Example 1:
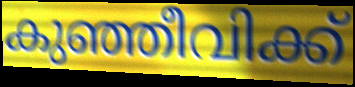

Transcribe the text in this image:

കുഞ്ഞീവിക്ക്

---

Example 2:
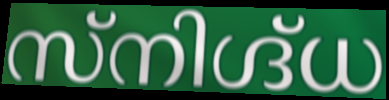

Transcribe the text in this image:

സ്നിഗ്ദ്ധ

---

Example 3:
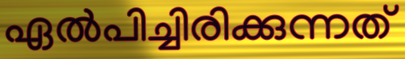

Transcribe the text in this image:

ഏൽപിച്ചിരിക്കുന്നത്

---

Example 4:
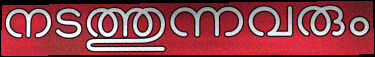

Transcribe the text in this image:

നടത്തുന്നവരും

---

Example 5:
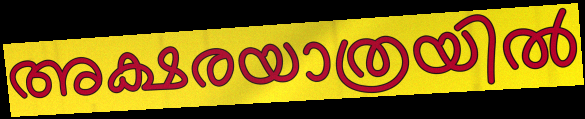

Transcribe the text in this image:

അക്ഷരയാത്രയിൽ